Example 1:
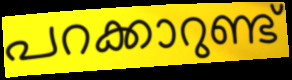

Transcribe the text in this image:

പറക്കാറുണ്ട്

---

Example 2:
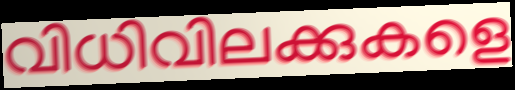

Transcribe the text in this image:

വിധിവിലക്കുകളെ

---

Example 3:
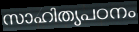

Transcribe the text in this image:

സാഹിത്യപഠനം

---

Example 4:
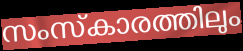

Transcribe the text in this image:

സംസ്‌കാരത്തിലും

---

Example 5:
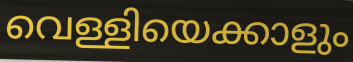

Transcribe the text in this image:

വെള്ളിയെക്കാളും